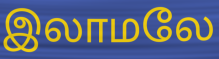
இலாமலே